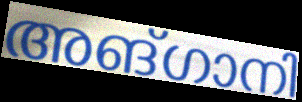
അങ്ഗാനി